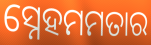
ସ୍ନେହମମତାର